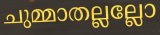
ചുമ്മാതല്ലല്ലോ